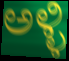
ಅಳ್ಳಿ